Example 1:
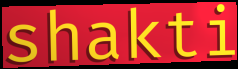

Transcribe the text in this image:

shakti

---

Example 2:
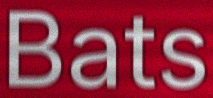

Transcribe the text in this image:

Bats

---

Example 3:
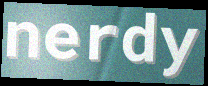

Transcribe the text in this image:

nerdy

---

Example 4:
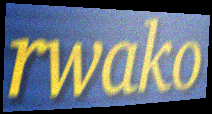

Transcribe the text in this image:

rwako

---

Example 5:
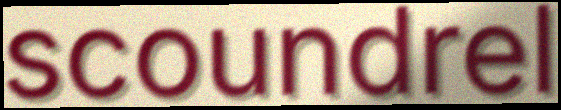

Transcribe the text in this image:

scoundrel